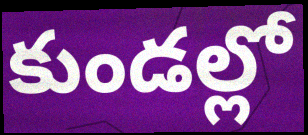
కుండల్లో